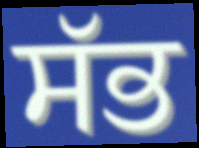
ਸੱਭ